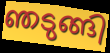
ഞടുങ്ങി